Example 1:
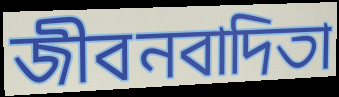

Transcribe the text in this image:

জীবনবাদিতা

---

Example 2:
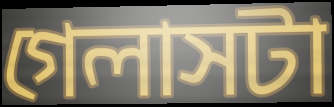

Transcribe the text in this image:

গেলাসটা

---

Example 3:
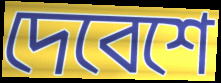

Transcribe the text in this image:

দেবেশে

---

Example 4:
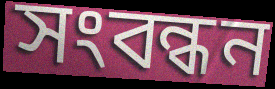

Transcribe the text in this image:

সংবন্ধন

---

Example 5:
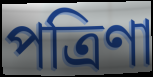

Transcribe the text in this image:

পত্রিণা